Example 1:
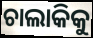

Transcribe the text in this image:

ଚାଲାକିକୁ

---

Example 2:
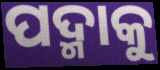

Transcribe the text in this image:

ପଦ୍ମାକୁ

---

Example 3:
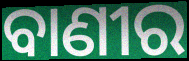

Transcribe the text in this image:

ବାଣୀର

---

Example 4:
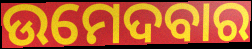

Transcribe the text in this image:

ଉମେଦବାର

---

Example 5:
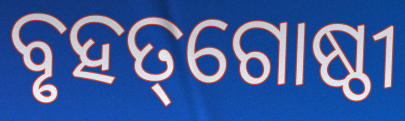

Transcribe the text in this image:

ବୃହତ୍‌ଗୋଷ୍ଠୀ